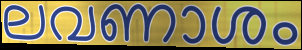
ലവണാശം